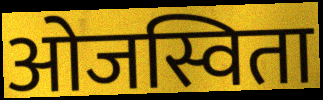
ओजस्विता